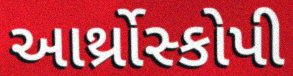
આર્થ્રોસ્કોપી